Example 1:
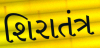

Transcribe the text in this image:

શિરાતંત્ર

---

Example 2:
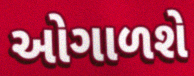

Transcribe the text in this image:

ઓગાળશે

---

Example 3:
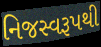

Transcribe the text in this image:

નિજસ્વરૂપથી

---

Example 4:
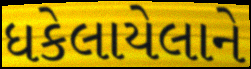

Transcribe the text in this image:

ધકેલાયેલાને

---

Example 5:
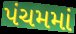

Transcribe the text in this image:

પંચમમાં